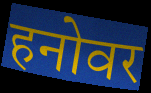
हनोवर